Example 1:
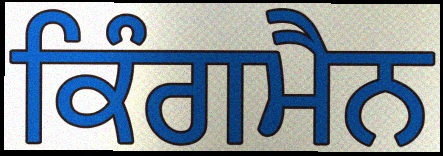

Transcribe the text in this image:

ਕਿੰਗਮੈਨ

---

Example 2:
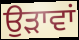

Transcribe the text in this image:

ਉੜਾਵਾਂ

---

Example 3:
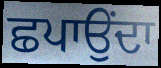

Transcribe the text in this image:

ਛਪਾਉਂਦਾ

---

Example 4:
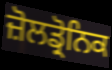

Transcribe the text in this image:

ਜ਼ੋਲਡ੍ਰੋਨਿਕ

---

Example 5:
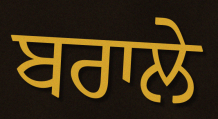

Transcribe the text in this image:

ਬਰਾਲੇ